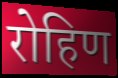
रोहिण